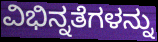
ವಿಭಿನ್ನತೆಗಳನ್ನು